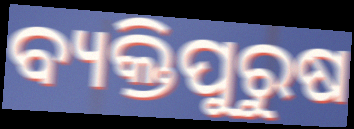
ବ୍ୟକ୍ତିପୁରୁଷ